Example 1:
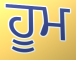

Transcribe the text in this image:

ਹੂਮ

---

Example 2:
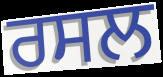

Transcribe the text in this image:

ਰਸਲ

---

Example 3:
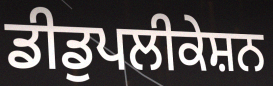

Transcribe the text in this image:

ਡੀਡੁਪਲੀਕੇਸ਼ਨ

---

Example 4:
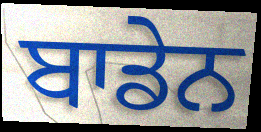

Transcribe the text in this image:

ਬਾਡੇਨ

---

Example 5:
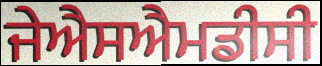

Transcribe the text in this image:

ਜੇਐਸਐਮਡੀਸੀ